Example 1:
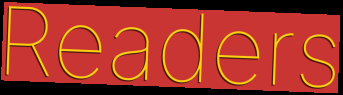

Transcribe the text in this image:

Readers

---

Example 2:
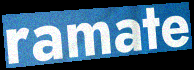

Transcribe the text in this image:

ramate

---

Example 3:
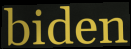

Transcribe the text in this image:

biden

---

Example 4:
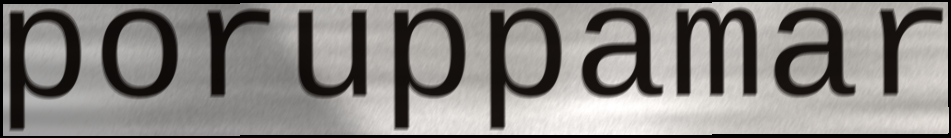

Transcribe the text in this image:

poruppamar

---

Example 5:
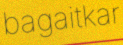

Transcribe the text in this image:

bagaitkar